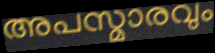
അപസ്മാരവും